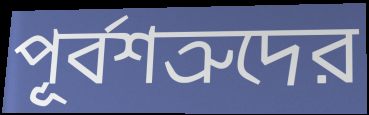
পূর্বশত্রুদের